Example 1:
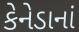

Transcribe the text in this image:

કેનેડાનાં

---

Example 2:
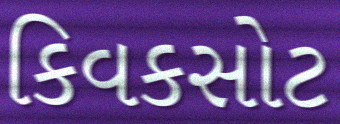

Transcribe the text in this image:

કિવકસોટ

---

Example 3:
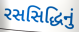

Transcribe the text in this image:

રસસિદ્ધિનું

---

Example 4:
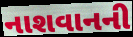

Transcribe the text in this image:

નાશવાનની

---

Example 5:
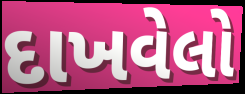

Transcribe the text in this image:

દાખવેલો